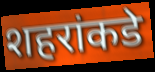
शहरांकडे